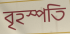
বৃহস্পতি